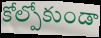
కోల్పోకుండా